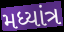
મધ્યાંત્ર